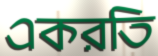
একরতি